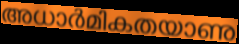
അധാർമികതയാണു